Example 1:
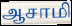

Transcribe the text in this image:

ஆசாமி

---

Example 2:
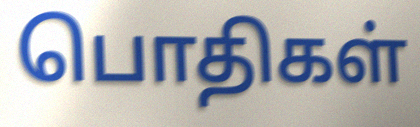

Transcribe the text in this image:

பொதிகள்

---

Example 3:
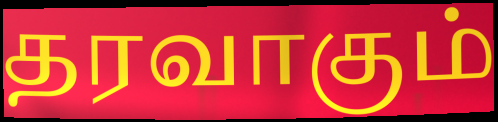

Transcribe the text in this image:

தரவாகும்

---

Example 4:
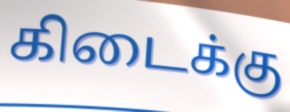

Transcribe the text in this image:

கிடைக்கு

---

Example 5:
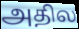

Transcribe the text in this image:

அதில